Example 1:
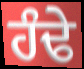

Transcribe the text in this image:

ਹੰਢੇ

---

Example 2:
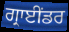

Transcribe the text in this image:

ਗ੍ਰਾਈਂਡਰ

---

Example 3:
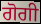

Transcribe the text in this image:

ਗੋਗੀ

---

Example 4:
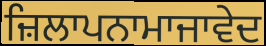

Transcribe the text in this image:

ਜ਼ਿਲਾਪਨਾਮਾਜਾਵੇਦ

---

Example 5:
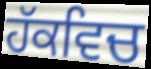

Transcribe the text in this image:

ਹੱਕਵਿਚ